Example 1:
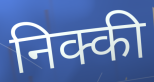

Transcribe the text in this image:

निक्की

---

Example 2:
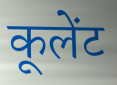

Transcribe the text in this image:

कूलेंट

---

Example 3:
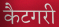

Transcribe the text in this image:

कैटगरी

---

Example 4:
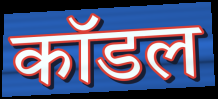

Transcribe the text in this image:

कॉडल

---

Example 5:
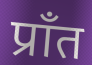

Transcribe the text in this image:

प्राँत